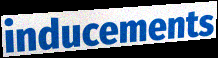
inducements